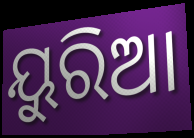
ୟୁରିଆ